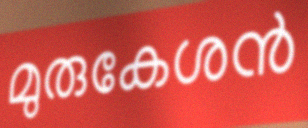
മുരുകേശൻ